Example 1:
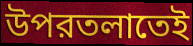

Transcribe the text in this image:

উপরতলাতেই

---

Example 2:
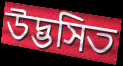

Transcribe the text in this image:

উদ্ভসিত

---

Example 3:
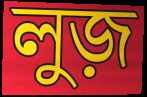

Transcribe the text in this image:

লুজ়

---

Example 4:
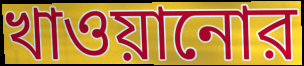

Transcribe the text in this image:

খাওয়ানোর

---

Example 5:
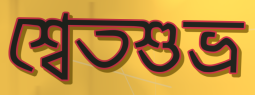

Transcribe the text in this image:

শ্বেতশুভ্র